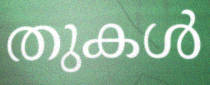
തുകൾ